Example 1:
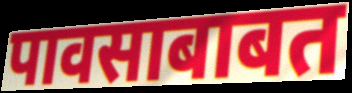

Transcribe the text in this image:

पावसाबाबत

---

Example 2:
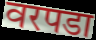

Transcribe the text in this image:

वरपडा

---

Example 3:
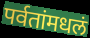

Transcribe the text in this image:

पर्वतांमधलं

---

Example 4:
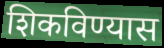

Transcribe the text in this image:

शिकविण्यास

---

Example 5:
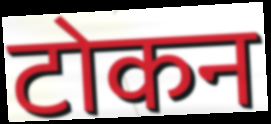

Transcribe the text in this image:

टोकन